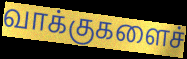
வாக்குகளைச்